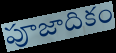
పూజాదికం